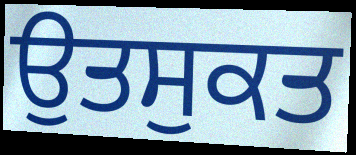
ਉਤਸੁਕਤ